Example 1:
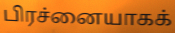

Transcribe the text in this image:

பிரச்னையாகக்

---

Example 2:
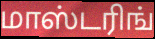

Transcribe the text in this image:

மாஸ்டரிங்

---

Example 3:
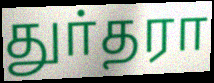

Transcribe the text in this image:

துர்தரா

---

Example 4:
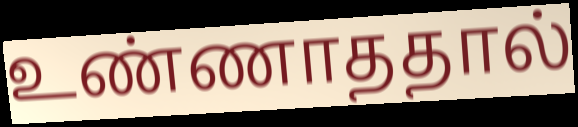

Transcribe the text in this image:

உண்ணாததால்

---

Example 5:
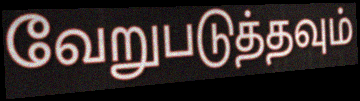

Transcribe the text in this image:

வேறுபடுத்தவும்